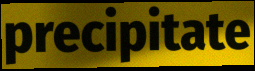
precipitate